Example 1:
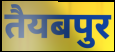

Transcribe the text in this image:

तैयबपुर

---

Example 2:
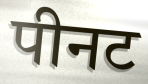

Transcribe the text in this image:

पीनट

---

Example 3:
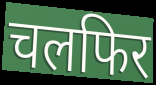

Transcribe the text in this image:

चलफिर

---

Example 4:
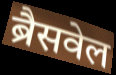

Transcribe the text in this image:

ब्रैसवेल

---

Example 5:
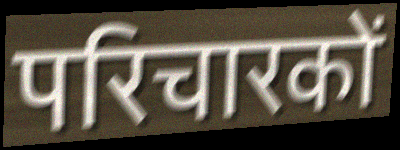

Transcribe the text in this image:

परिचारकों